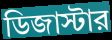
ডিজাস্টার